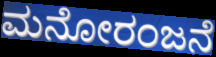
ಮನೋರಂಜನೆ